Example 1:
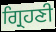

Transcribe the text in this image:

ਗ੍ਰਿਹਣੀ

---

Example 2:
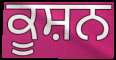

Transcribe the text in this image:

ਕੂਸ਼ਨ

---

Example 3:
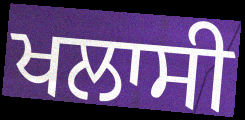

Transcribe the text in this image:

ਖਲਾਸੀ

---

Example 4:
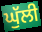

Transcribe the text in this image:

ਘੁੱਲੀ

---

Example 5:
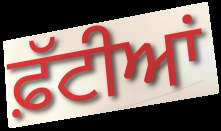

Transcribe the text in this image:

ਫ਼ੱਟੀਆਂ